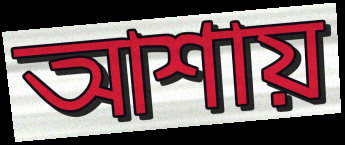
আশায়